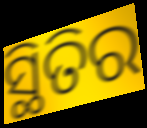
ସ୍ଥିତିର